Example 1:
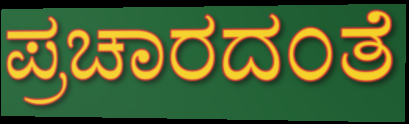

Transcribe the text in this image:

ಪ್ರಚಾರದಂತೆ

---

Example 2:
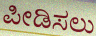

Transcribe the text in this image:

ಪೀಡಿಸಲು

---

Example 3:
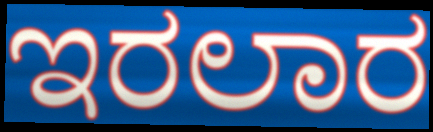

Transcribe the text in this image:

ಇರಲಾರ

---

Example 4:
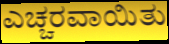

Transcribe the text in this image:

ಎಚ್ಚರವಾಯಿತು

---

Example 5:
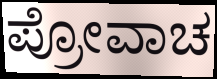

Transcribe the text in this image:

ಪ್ರೋವಾಚ